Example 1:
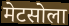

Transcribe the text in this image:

मेटसोला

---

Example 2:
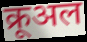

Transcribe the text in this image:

क्रूअल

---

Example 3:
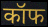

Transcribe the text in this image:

कॉफ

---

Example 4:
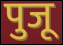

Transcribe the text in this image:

पुजू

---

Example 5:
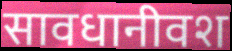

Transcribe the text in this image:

सावधानीवश